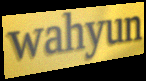
wahyun